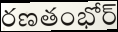
రణతంభోర్